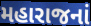
મહારાજનાં